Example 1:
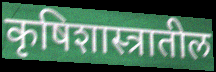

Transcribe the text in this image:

कृषिशास्त्रातील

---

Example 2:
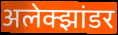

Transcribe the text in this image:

अलेक्झांडर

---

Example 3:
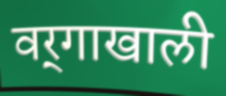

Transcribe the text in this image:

वर्गाखाली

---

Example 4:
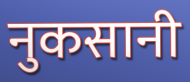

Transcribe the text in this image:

नुकसानी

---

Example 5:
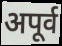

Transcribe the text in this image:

अपूर्व